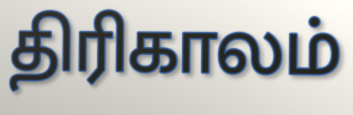
திரிகாலம்